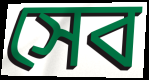
সেব